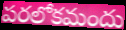
పరలోకమందు